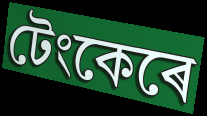
টেংকেৰে